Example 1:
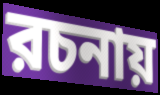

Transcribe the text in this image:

রচনায়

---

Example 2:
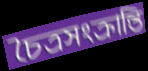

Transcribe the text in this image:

চৈত্রসংক্রান্তি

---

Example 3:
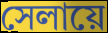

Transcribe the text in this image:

সেলায়ে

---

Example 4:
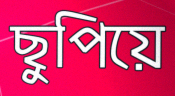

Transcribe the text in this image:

ছুপিয়ে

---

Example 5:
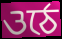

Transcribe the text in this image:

ওঠে